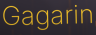
Gagarin